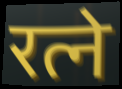
रत्ने